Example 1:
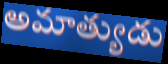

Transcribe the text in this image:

అమాత్యుడు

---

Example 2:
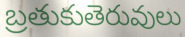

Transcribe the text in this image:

బ్రతుకుతెరువులు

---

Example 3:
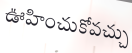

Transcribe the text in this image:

ఊహించుకోవచ్చు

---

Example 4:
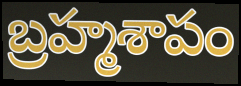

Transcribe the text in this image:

బ్రహ్మశాపం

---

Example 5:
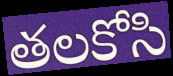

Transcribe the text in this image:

తలకోసి